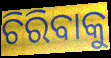
ଚିରିବାକୁ